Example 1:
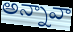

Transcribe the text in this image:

అన్నావా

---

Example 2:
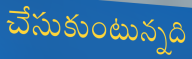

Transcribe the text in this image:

చేసుకుంటున్నది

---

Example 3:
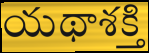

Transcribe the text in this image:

యథాశక్తి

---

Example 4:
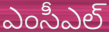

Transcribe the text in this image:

ఎంసీఎల్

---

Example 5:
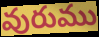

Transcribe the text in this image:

వురుము